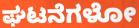
ಘಟನೆಗಳೋ